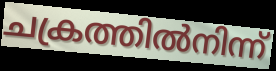
ചക്രത്തിൽനിന്ന്